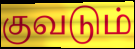
குவடும்